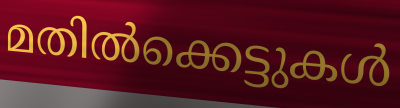
മതിൽക്കെട്ടുകൾ